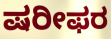
ಷರೀಫರ